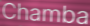
Chamba